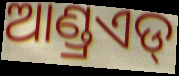
ଆଣ୍ଡ୍ରଏଡ୍